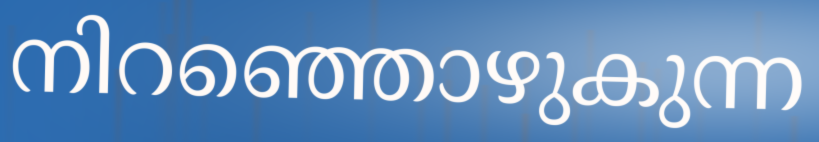
നിറഞ്ഞൊഴുകുന്ന